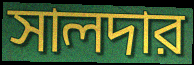
সালদার